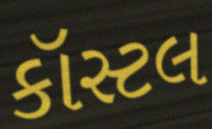
કૉસ્ટલ